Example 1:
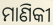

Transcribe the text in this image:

ମାଣିକୀ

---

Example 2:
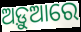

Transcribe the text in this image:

ଅଡ଼ୁଆରେ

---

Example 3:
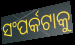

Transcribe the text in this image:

ସଂପର୍କଟାକୁ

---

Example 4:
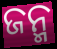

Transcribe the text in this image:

ଜନ୍ମ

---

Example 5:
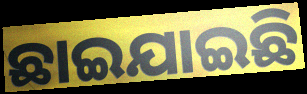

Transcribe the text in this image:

ଛାଇଯାଇଛି